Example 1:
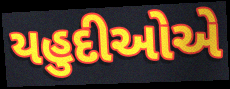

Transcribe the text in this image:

યહુદીઓએ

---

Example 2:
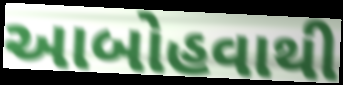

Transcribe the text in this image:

આબોહવાથી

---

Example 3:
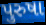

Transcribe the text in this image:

પુરુષા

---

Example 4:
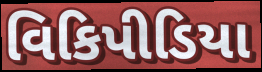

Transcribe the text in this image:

વિકિપીડિયા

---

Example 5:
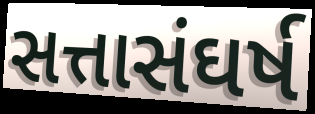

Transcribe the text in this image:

સત્તાસંઘર્ષ